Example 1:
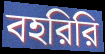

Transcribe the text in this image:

বহরিরি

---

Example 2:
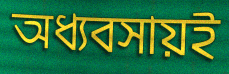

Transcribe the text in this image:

অধ্যবসায়ই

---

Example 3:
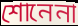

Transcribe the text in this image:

শোনেনা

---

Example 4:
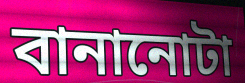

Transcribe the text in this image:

বানানোটা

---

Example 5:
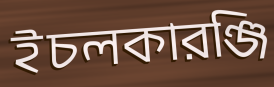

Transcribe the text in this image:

ইচলকারঞ্জি